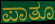
ಪಾತೂ